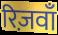
रिज़वाँ